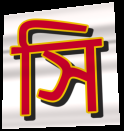
সি